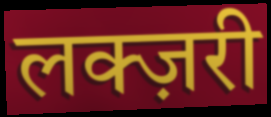
लक्ज़री